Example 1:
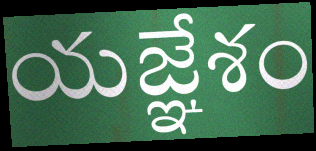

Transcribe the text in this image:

యజ్ఞేశం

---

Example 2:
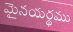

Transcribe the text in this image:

మైనయర్థము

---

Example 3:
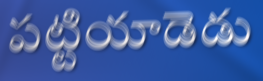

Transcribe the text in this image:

పట్టియాడెడు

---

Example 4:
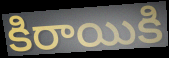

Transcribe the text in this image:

కిరాయికి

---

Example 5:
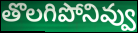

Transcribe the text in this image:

తొలగిపోనివ్వు